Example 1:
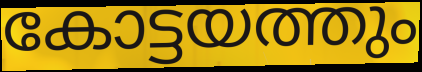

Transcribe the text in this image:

കോട്ടയത്തും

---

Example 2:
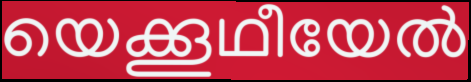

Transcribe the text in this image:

യെക്കൂഥീയേൽ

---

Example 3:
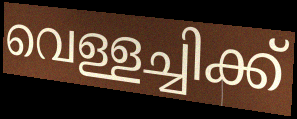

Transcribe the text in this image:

വെള്ളച്ചിക്ക്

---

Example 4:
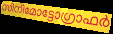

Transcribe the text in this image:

സിനിമോട്ടോഗ്രാഫർ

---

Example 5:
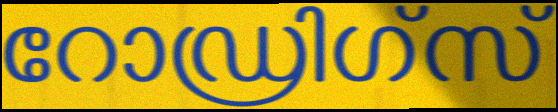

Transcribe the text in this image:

റോഡ്രിഗ്സ്